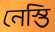
নেস্তি